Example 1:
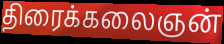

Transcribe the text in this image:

திரைக்கலைஞன்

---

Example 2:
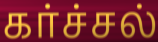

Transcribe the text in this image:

கர்ச்சல்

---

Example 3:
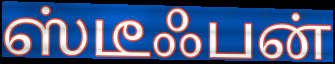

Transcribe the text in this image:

ஸ்டீஃபன்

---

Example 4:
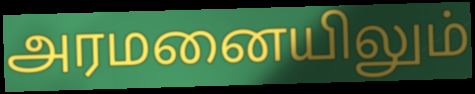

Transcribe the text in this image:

அரமனையிலும்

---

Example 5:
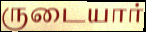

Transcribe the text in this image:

ருடையார்